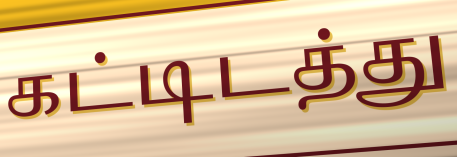
கட்டிடத்து